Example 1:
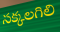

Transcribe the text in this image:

సక్కలగిలి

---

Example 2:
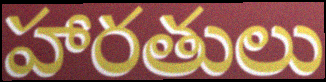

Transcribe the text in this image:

హారతులు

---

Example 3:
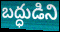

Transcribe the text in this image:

బద్ధుడిని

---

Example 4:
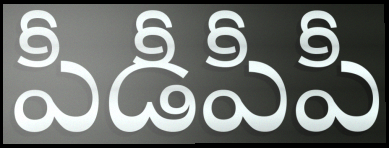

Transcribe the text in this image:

పీడీపీపీ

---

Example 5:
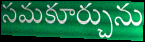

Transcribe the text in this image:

సమకూర్చును